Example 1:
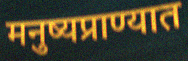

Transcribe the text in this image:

मनुष्यप्राण्यात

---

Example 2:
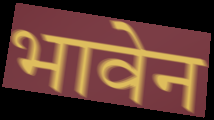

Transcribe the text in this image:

भावेन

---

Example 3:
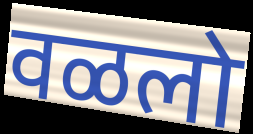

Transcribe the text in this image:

वळलो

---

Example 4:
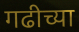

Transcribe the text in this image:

गढीच्या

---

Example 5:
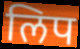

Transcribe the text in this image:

लिप